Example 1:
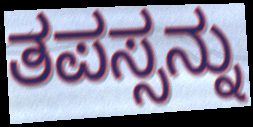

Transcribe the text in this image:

ತಪಸ್ಸನ್ನು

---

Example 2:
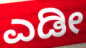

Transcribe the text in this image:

ಎಡೀ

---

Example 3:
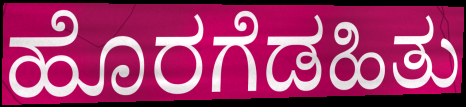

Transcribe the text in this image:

ಹೊರಗೆಡಹಿತು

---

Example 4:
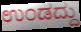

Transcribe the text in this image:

ಉಂಡದ್ದು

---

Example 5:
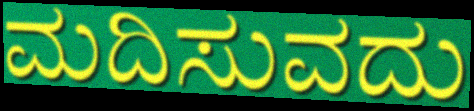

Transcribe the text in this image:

ಮದಿಸುವದು